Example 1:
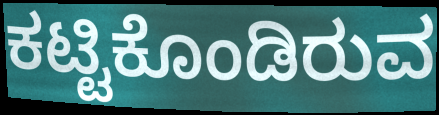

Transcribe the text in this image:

ಕಟ್ಟಿಕೊಂಡಿರುವ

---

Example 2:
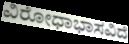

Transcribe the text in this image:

ವಿರೋಧಾಭಾಸವಿದೆ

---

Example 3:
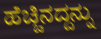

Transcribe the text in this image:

ಹೆಚ್ಚಿನದ್ದನ್ನು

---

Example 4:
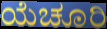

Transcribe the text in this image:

ಯೆಚೂರಿ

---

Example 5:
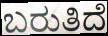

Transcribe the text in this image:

ಬರುತಿದೆ